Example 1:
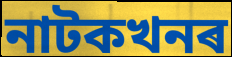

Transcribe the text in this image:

নাটকখনৰ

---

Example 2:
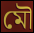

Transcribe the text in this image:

মৌ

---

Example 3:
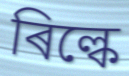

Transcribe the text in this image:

ৰিল্কে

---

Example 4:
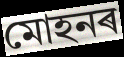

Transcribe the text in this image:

মোহনৰ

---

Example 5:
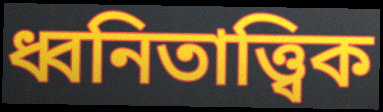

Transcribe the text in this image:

ধ্বনিতাত্ত্বিক